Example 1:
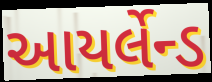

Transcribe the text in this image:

આયર્લેન્ડ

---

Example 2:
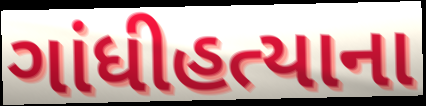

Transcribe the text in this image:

ગાંધીહત્યાના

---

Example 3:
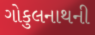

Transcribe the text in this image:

ગોકુલનાથની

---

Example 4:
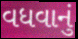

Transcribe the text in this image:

વધવાનું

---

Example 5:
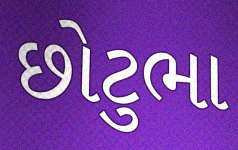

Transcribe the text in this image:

છોટુભા